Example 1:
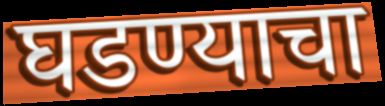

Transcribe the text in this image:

घडण्याचा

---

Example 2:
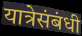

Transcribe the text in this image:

यात्रेसंबंधी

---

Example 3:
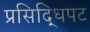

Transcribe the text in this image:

प्रसिद्धिपट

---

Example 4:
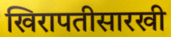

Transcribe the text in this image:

खिरापतीसारखी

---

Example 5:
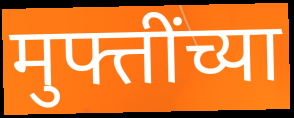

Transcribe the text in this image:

मुफ्तींच्या